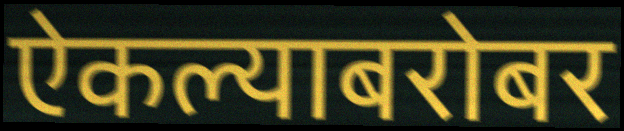
ऐकल्याबरोबर